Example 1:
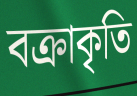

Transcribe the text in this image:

বক্রাকৃতি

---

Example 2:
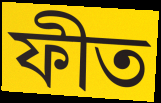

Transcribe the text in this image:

ফীত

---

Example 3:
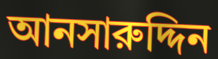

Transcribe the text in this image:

আনসারুদ্দিন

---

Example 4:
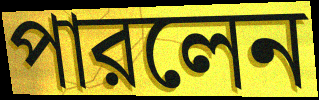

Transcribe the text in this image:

পারলেন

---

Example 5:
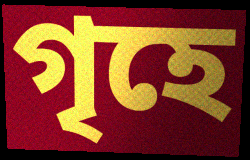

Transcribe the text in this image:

গৃহে